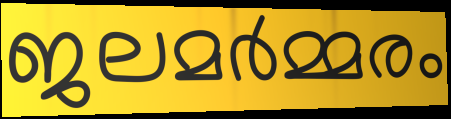
ജലമർമ്മരം